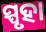
ସ୍ପୃହା